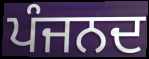
ਪੰਜਨਦ